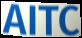
AITC